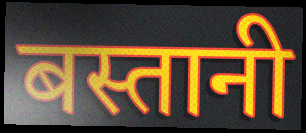
बस्तानी